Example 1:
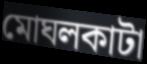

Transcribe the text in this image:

মোঘলকাটা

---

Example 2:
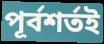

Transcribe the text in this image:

পূর্বশর্তই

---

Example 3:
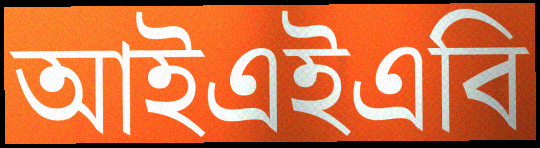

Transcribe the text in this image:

আইএইএবি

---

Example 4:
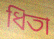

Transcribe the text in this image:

ধিতা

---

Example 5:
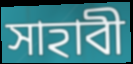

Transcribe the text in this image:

সাহাবী